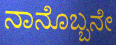
ನಾನೊಬ್ಬನೇ